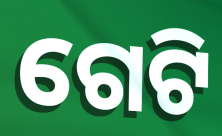
ଗେଟି